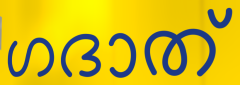
ഗദാത്